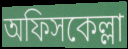
অফিসকেল্লা